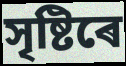
সৃষ্টিৰে